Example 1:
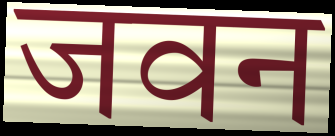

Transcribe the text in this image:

जवन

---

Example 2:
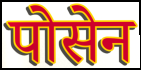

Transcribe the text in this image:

पोसेन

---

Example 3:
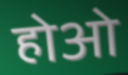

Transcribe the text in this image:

होओ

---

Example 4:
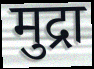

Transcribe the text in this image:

मुद्रा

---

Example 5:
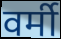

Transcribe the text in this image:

वर्मी